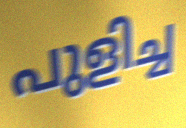
പുളിച്ച